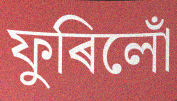
ফুৰিলোঁ